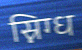
स्निग्ध